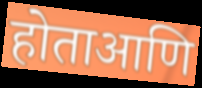
होताआणि